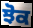
ਝੋਕ